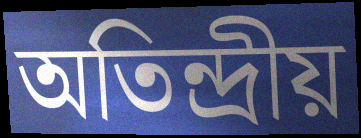
অতিন্দ্রীয়